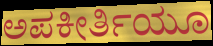
ಅಪಕೀರ್ತಿಯೂ